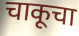
चाकूचा